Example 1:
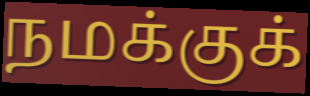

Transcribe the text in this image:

நமக்குக்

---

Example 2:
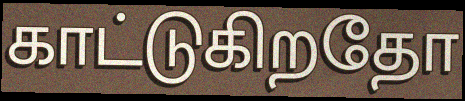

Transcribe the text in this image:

காட்டுகிறதோ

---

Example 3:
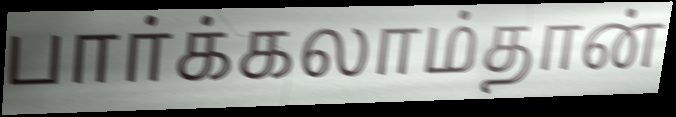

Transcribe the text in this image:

பார்க்கலாம்தான்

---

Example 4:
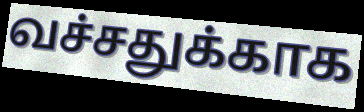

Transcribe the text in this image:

வச்சதுக்காக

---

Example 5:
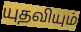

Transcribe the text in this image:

யுதவியும்